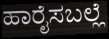
ಹಾರೈಸಬಲ್ಲೆ